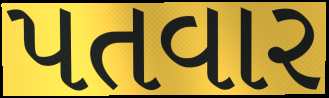
પતવાર